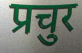
प्रचुर